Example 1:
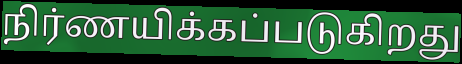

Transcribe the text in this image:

நிர்ணயிக்கப்படுகிறது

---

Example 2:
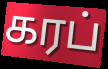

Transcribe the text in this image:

கரப்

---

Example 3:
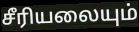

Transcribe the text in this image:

சீரியலையும்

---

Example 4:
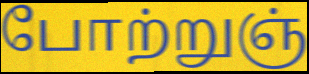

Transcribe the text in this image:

போற்றுஞ்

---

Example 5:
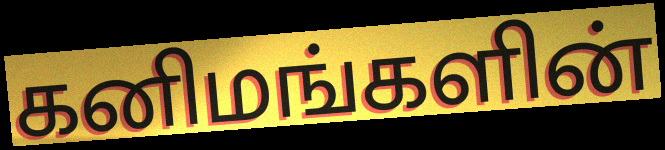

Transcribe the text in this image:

கனிமங்களின்